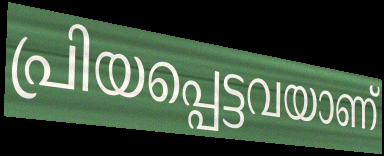
പ്രിയപ്പെട്ടവയാണ്